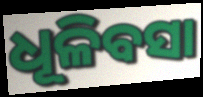
ଧୂଳିବସା